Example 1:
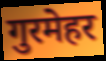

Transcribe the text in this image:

गुरमेहर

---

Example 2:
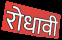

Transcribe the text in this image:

रोधावी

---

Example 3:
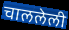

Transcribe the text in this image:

चाललेली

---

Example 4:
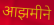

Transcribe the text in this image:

आझमीने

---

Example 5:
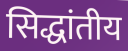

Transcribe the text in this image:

सिद्धांतीय